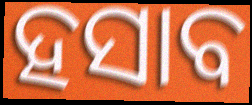
ହସାବ